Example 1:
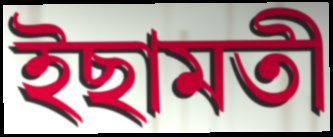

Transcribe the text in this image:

ইছামতী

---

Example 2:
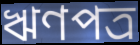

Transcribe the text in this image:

ঋণপত্র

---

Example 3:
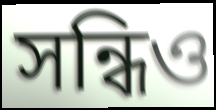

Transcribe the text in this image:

সন্ধিও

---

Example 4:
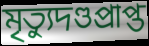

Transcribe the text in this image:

মৃত্যুদণ্ডপ্রাপ্ত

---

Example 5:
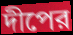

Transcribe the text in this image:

দীপের